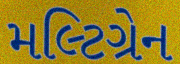
મલ્ટિગ્રેન